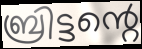
ബ്രിട്ടന്റെ